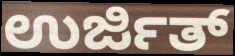
ಉರ್ಜಿತ್